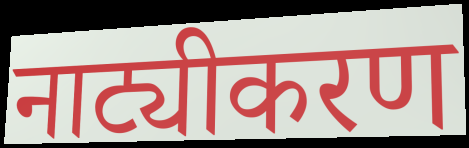
नाट्यीकरण